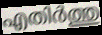
എതിർത്തു